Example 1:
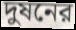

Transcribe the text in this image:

দুষনের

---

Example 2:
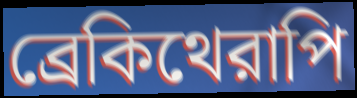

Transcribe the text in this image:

ব্রেকিথেরাপি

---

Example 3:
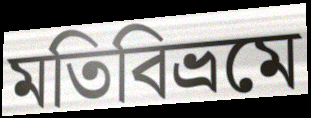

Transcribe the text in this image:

মতিবিভ্রমে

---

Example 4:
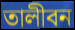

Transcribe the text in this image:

তালীবন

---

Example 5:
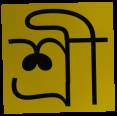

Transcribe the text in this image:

শ্রী